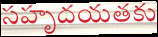
సహృదయతకు